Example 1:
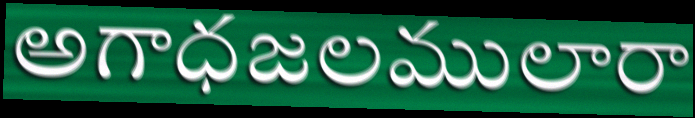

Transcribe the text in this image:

అగాధజలములారా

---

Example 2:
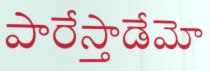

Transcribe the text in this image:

పారేస్తాడేమో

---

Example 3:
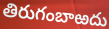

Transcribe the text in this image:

తిరుగంబాఱదు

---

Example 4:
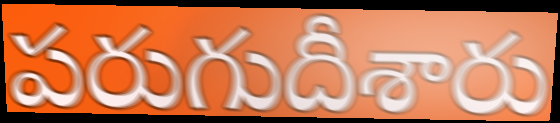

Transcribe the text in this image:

పరుగుదీశారు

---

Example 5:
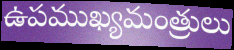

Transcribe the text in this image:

ఉపముఖ్యమంత్రులు